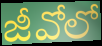
జీవోలో